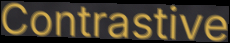
Contrastive